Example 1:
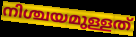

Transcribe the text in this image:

നിശ്ചയമുള്ളത്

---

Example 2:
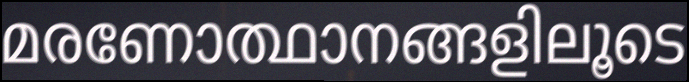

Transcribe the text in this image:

മരണോത്ഥാനങ്ങളിലൂടെ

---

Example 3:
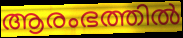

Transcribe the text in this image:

ആരംഭത്തിൽ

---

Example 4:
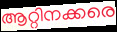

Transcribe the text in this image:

ആറ്റിനക്കരെ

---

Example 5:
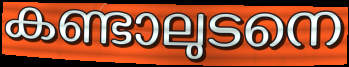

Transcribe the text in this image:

കണ്ടാലുടനെ